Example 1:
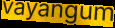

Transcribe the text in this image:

vayangum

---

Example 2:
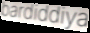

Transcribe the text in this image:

bardiddiya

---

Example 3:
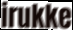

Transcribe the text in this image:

irukke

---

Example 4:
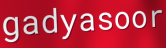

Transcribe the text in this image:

gadyasoor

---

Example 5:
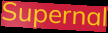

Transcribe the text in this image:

Supernal